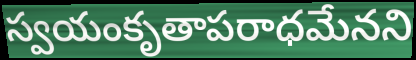
స్వయంకృతాపరాధమేనని